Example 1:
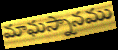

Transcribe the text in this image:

మాఘస్నానము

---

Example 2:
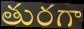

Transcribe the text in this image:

తురగా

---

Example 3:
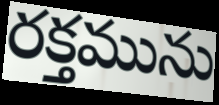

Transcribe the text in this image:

రక్తమును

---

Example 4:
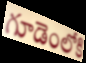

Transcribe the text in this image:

గూడెంలోకి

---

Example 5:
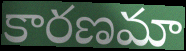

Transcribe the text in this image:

కారణమా